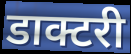
डाक्टरी